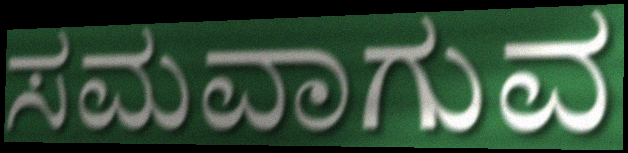
ಸಮವಾಗುವ